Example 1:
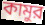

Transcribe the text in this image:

কামুর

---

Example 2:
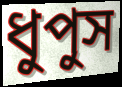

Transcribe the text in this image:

ধুপুস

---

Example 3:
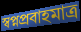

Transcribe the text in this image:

স্বপ্নপ্রবাহমাত্র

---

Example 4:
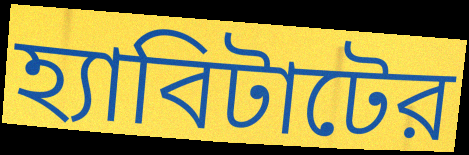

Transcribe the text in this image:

হ্যাবিটাটের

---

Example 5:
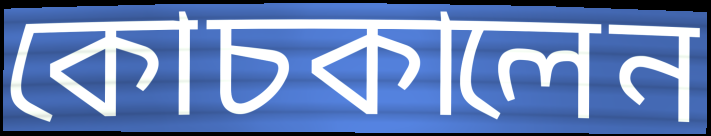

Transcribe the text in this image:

কোচকালেন